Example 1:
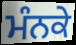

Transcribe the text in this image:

ਮੰਨਕੇ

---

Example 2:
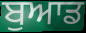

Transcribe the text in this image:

ਬੁਆਡ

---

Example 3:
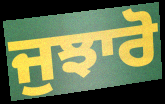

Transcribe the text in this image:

ਜੁਝਾਰੋ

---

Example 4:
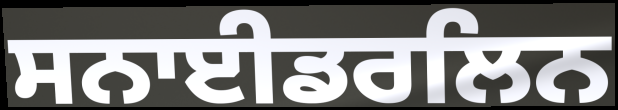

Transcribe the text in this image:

ਸਨਾਈਡਰਲਿਨ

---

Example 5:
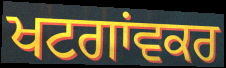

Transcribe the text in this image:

ਖਟਗਾਂਵਕਰ